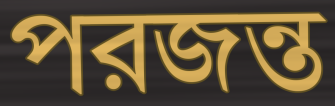
পরজন্ত